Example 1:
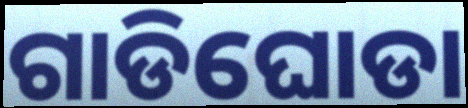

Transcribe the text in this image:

ଗାଡିଘୋଡା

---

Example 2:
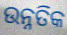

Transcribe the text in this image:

ଉନ୍ନତିକ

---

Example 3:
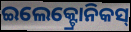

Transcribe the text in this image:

ଇଲେକ୍ଟ୍ରୋନିକସ୍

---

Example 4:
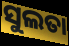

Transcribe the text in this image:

ସୁଲତା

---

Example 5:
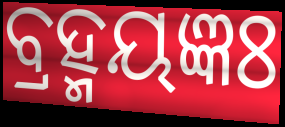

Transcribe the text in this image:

ବ୍ରହ୍ମୟଜ୍ଞଃ